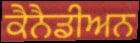
ਕੈਨੈਡੀਅਨ